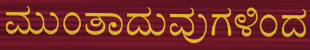
ಮುಂತಾದುವುಗಳಿಂದ